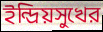
ইন্দ্রিয়সুখের